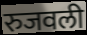
रुजवली